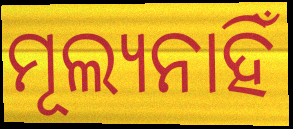
ମୂଲ୍ୟନାହିଁ